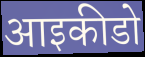
आइकीडो